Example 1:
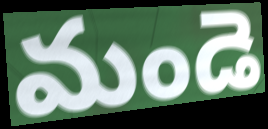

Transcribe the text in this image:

మండె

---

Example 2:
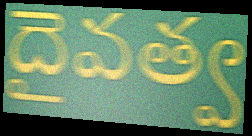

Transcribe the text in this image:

దైవత్వ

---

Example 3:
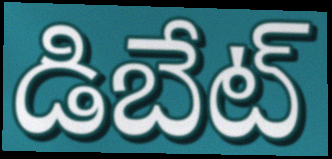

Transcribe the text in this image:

డిబేట్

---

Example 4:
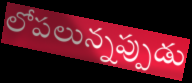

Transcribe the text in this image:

లోపలున్నప్పుడు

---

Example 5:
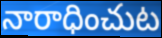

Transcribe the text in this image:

నారాధించుట